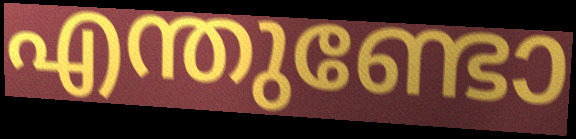
എന്തുണ്ടോ